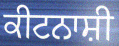
ਕੀਟਨਾਸ਼ੀ